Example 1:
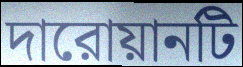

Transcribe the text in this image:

দারোয়ানটি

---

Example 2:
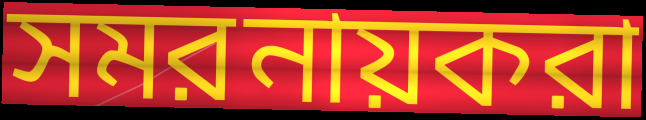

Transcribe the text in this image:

সমরনায়করা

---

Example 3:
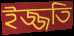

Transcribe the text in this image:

ইজ্জতি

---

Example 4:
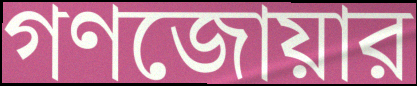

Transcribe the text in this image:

গণজোয়ার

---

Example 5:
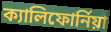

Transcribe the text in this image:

ক্যালিফোর্নিয়া